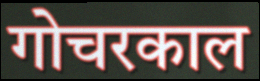
गोचरकाल